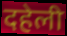
दहेली